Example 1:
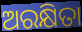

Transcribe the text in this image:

ଅରକ୍ଷିତା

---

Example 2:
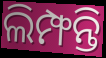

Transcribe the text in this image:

ଲିମ୍ଫନ୍ତି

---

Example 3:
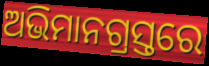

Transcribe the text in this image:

ଅଭିମାନଗ୍ରସ୍ତରେ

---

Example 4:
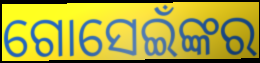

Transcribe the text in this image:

ଗୋସେଇଁଙ୍କର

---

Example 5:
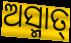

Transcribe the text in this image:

ଅସ୍ମାତ୍